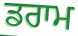
ਡਰਾਮ